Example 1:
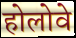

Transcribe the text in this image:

होलोवे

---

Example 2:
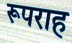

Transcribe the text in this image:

रूपराह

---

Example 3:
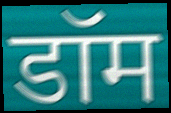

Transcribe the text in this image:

डॉम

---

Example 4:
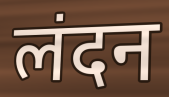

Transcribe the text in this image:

लंदन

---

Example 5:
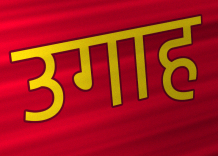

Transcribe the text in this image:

उगाह